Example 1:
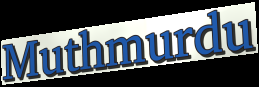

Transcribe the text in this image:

Muthmurdu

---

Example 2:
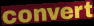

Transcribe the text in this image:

convert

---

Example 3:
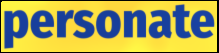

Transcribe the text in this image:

personate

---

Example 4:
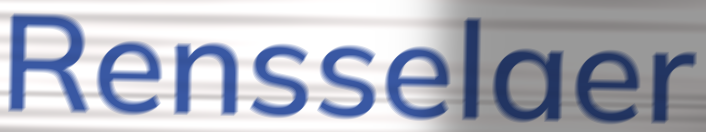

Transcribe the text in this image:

Rensselaer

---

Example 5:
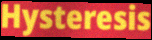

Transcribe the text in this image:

Hysteresis